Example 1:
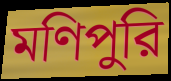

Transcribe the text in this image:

মণিপুরি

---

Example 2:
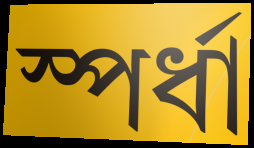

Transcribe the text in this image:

স্পর্ধা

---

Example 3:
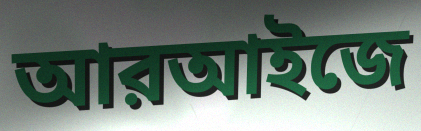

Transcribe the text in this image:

আরআইজে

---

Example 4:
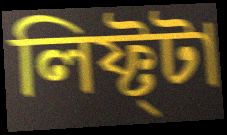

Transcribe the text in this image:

লিফ্ট্টা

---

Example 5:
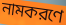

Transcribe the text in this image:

নামকরণে